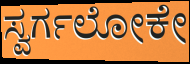
ಸ್ವರ್ಗಲೋಕೇ